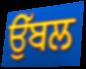
ਉੱਬਲ